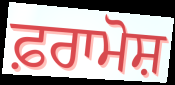
ਫ਼ਰਾਮੋਸ਼